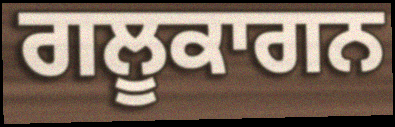
ਗਲੂਕਾਗਨ